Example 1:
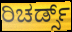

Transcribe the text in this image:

ರಿಚರ್ಡ್ಸ್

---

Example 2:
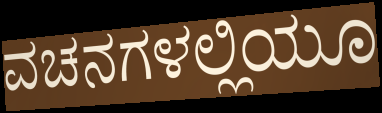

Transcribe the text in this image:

ವಚನಗಳಲ್ಲಿಯೂ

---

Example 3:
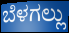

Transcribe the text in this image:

ಬೆಳಗಲ್ಲು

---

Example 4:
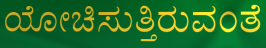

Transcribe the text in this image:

ಯೋಚಿಸುತ್ತಿರುವಂತೆ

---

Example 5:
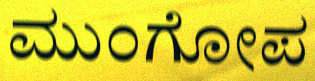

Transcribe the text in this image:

ಮುಂಗೋಪ